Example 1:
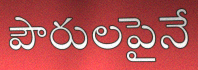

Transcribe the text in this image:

పౌరులపైనే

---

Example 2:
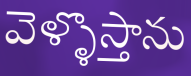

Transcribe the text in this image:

వెళ్ళొస్తాను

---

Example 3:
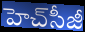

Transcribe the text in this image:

హెచ్‌సీజీ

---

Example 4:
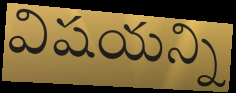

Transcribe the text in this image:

విషయన్ని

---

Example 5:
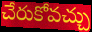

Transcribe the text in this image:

చేరుకోవచ్చు